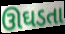
ઊઘડતા